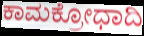
ಕಾಮಕ್ರೋಧಾದಿ